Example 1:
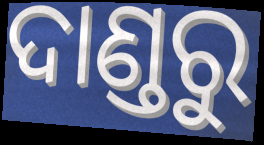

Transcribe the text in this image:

ଦାଣ୍ଡରୁ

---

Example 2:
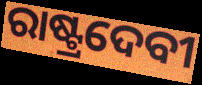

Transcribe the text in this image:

ରାଷ୍ଟ୍ରଦେବୀ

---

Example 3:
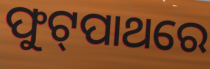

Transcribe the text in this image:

ଫୁଟ୍‍ପାଥରେ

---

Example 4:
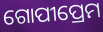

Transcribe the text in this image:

ଗୋପୀପ୍ରେମ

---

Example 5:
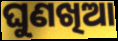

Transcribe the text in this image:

ଘୁଣଖିଆ